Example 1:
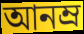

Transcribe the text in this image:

আনম্র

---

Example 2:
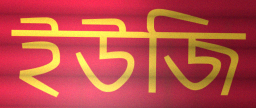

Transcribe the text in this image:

ইউজি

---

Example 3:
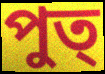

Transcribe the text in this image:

পুত্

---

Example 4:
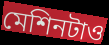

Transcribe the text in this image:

মেশিনটাও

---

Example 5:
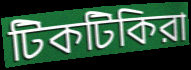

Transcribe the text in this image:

টিকটিকিরা